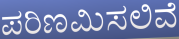
ಪರಿಣಮಿಸಲಿವೆ